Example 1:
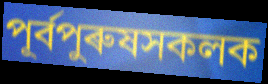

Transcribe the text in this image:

পূৰ্বপুৰুষসকলক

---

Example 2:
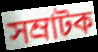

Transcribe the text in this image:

সম্ৰাটক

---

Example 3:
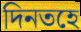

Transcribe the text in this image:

দিনতহে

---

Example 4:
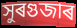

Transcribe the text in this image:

সুৰগুজাৰ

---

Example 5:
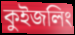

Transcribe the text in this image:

কুইজলিং